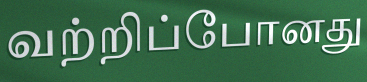
வற்றிப்போனது